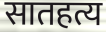
सातहत्य